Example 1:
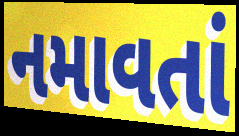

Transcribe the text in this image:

નમાવતાં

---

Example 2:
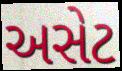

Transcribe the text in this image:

અસેટ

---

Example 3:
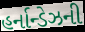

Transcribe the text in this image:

હર્નાન્ડેઝની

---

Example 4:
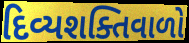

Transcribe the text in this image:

દિવ્યશક્તિવાળો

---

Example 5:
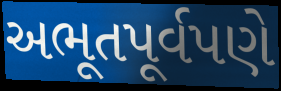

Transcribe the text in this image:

અભૂતપૂર્વપણે